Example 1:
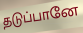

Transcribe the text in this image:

தடுப்பானே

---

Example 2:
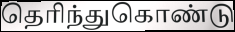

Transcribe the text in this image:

தெரிந்துகொண்டு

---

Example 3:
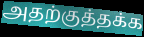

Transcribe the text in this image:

அதற்குத்தக்க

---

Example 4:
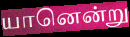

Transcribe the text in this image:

யானென்று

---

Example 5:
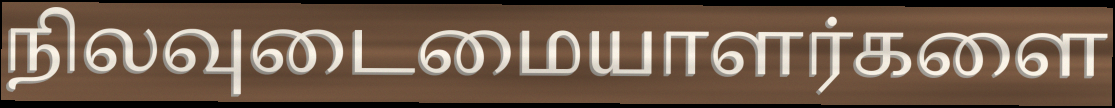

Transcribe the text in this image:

நிலவுடைமையாளர்களை